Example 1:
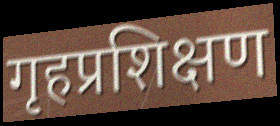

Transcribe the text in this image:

गृहप्रशिक्षण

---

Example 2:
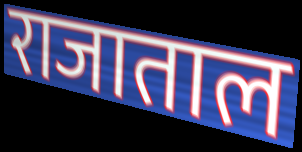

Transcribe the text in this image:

राजाताल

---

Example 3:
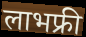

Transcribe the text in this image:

लाभफ्री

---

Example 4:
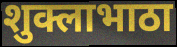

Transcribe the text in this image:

शुक्लाभाठा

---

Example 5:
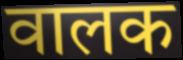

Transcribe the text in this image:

वालक